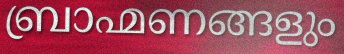
ബ്രാഹ്മണങ്ങളും